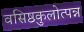
वसिष्ठकुलोत्पन्न